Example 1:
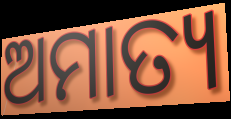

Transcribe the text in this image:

ଅମାତ୍ୟ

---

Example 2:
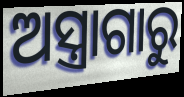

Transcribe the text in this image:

ଅସ୍ତ୍ରାଗାରୁ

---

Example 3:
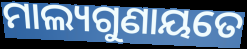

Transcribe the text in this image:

ମାଲ୍ୟଗୁଣାୟତେ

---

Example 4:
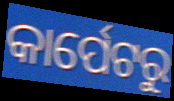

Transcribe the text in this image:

କାର୍ପେଟରୁ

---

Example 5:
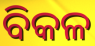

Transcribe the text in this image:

ବିକଳ